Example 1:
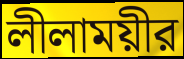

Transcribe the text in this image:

লীলাময়ীর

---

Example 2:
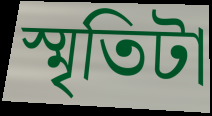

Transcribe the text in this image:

স্মৃতিটা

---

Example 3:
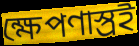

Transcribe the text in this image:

ক্ষেপণাস্ত্রই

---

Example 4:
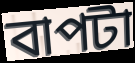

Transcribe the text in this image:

বাপটা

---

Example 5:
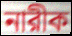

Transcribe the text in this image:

নারীক